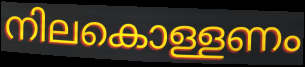
നിലകൊള്ളണം